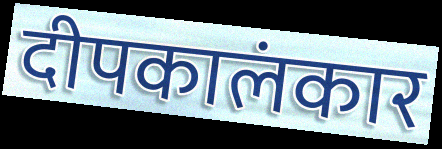
दीपकालंकार